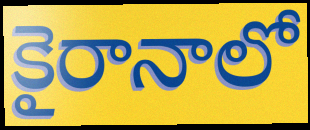
కైరానాలో